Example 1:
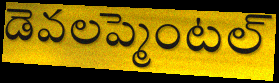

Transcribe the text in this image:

డెవలప్మెంటల్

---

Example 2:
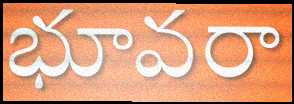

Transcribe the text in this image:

భూవరా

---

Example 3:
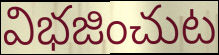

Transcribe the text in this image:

విభజించుట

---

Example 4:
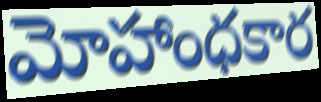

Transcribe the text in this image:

మోహాంధకార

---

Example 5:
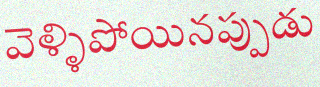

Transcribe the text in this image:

వెళ్ళిపోయినప్పుడు